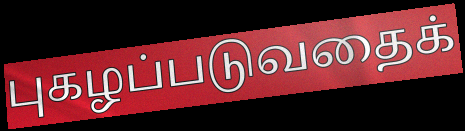
புகழப்படுவதைக்